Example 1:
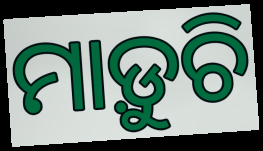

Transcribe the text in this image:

ମାଡ଼ୁଚି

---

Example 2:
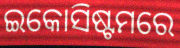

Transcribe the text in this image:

ଇକୋସିଷ୍ଟମରେ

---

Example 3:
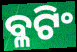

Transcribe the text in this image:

ବ୍ଳଟିଂ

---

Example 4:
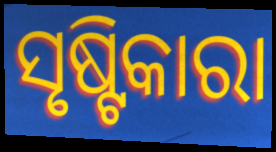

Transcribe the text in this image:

ସୃଷ୍ଟିକାରା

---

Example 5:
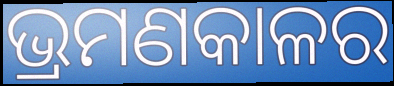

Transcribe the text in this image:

ଭ୍ରମଣକାଳର